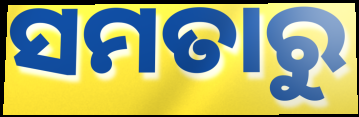
ସମତାରୁ